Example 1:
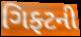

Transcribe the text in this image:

ગિફ્ટની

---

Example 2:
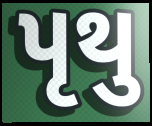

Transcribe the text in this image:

પૃથુ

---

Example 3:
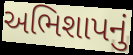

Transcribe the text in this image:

અભિશાપનું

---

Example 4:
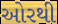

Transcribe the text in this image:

ઓરથી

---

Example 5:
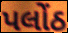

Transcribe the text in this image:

પલોંઠ